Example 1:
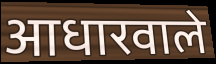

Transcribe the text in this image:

आधारवाले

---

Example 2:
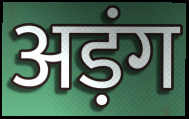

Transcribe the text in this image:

अड़ंग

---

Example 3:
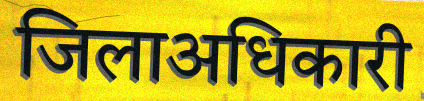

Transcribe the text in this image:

जिलाअधिकारी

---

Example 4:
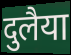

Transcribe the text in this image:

दुलैया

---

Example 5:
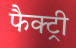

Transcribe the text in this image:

फैक्ट्री